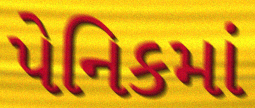
પેનિકમાં